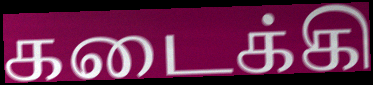
கடைக்கி